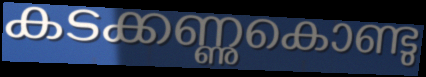
കടക്കണ്ണുകൊണ്ടു